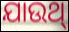
ଯାଉଥ୍